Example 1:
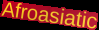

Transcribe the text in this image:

Afroasiatic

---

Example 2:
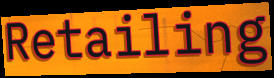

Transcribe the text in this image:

Retailing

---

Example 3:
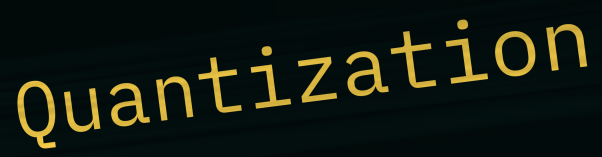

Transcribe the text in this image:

Quantization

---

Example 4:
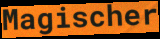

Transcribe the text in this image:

Magischer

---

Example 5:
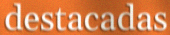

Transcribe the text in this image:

destacadas